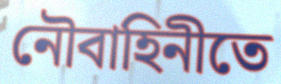
নৌবাহিনীতে